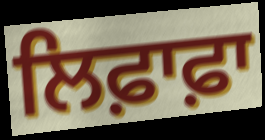
ਲਿਫ਼ਾਫ਼ਾ